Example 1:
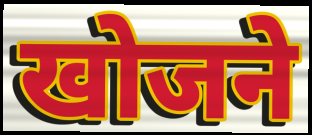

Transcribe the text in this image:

खोजने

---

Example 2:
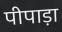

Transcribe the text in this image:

पीपाड़ा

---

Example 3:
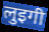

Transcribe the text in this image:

लुइगी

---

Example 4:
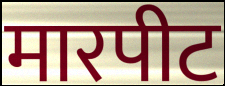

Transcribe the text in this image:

मारपीट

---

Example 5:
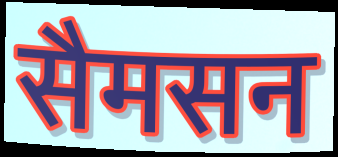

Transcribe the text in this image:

सैमसन